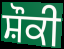
ਸ਼ੌਕੀ